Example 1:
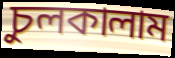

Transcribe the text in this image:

চুলকালাম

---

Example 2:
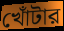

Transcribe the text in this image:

খোঁটার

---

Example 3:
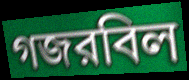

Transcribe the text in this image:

গজরবিল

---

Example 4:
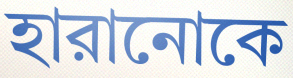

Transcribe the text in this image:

হারানোকে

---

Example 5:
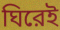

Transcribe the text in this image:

ঘিরেই